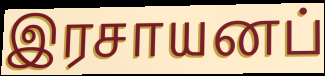
இரசாயனப்